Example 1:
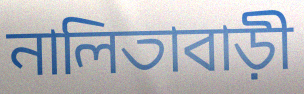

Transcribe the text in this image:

নালিতাবাড়ী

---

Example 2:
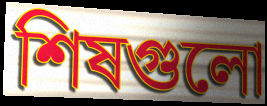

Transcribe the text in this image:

শিষগুলো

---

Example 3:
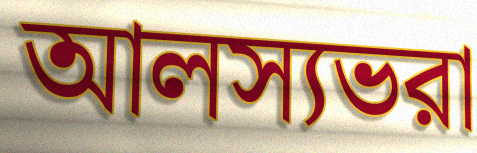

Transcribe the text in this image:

আলস্যভরা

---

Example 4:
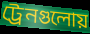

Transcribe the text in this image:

ট্রেনগুলোয়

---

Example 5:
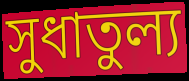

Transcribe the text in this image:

সুধাতুল্য